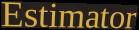
Estimator